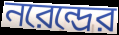
নরেন্দ্রের